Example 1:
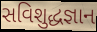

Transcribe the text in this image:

સવિશુદ્ધજ્ઞાન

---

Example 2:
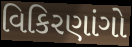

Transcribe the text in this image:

વિકિરણાંગો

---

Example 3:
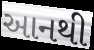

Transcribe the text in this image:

આનથી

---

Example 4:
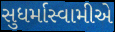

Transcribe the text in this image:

સુધર્માસ્વામીએ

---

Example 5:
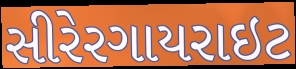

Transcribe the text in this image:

સીરેરગાયરાઇટ